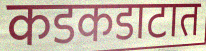
कडकडाटात